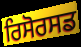
ਰਿਸੋਰਸਡ